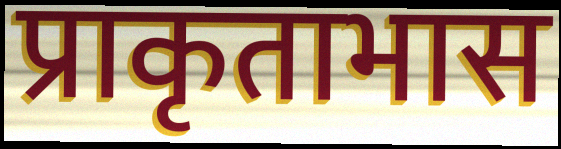
प्राकृताभास